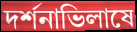
দর্শনাভিলাষে